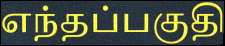
எந்தப்பகுதி